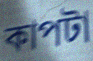
কাপটা